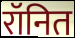
रॉनित